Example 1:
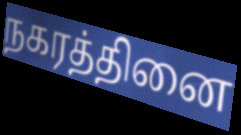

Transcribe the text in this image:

நகரத்தினை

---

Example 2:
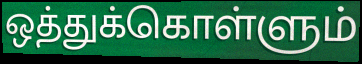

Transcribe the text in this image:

ஒத்துக்கொள்ளும்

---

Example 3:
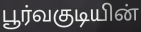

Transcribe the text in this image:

பூர்வகுடியின்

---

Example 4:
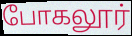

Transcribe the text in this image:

போகலூர்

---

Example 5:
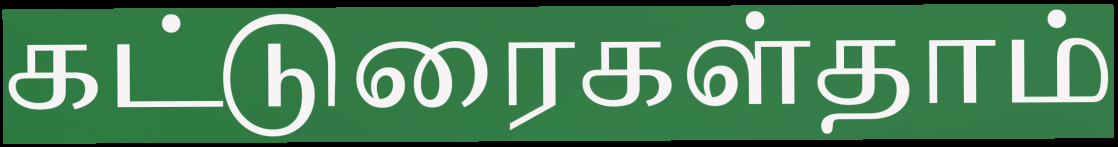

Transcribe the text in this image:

கட்டுரைகள்தாம்